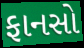
ફાનસો